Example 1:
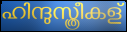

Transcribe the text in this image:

ഹിന്ദുസ്ത്രീകള്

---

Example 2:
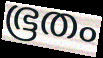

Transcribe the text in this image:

ഭൂതം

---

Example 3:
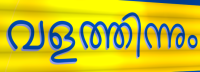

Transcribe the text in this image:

വളത്തിന്നും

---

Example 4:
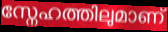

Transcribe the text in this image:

സ്നേഹത്തിലുമാണ്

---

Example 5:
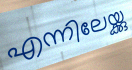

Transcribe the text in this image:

എന്നിലേയ്ക്കു